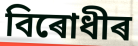
বিৰোধীৰ